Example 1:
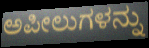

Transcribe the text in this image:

ಅಪೀಲುಗಳನ್ನು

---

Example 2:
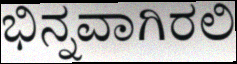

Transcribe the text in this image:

ಭಿನ್ನವಾಗಿರಲಿ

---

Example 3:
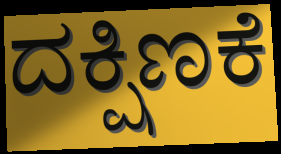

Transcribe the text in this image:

ದಕ್ಷಿಣಕೆ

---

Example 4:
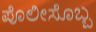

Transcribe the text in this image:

ಪೊಲೀಸೊಬ್ಬ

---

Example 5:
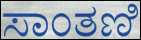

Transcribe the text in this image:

ಸಾಂತಣಿ